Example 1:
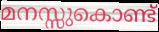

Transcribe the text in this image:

മനസ്സുകൊണ്ട്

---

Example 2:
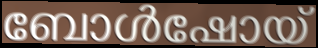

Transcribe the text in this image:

ബോൾഷോയ്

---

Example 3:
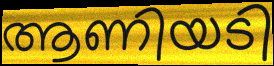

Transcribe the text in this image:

ആണിയടി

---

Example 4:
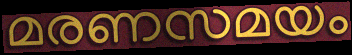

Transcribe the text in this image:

മരണസമയം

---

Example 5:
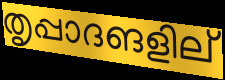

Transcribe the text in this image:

തൃപ്പാദങളില്